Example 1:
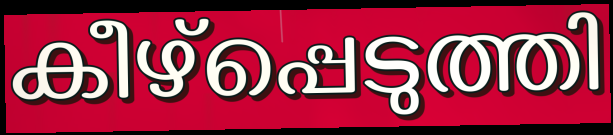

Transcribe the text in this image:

കീഴ്പ്പെടുത്തി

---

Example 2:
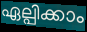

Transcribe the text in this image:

ഏല്പിക്കാം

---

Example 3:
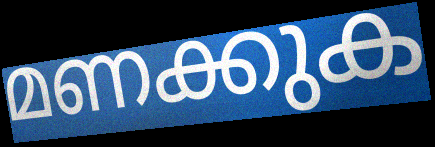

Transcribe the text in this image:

മണക്കുക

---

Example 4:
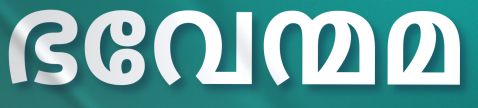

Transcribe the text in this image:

ഭവേന്മമ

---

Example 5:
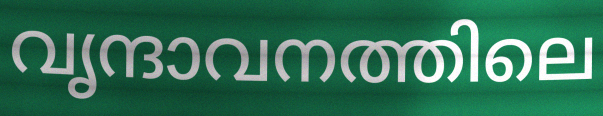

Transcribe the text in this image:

വൃന്ദാവനത്തിലെ